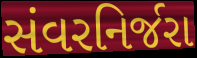
સંવરનિર્જરા